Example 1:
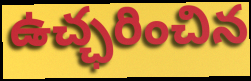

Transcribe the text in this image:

ఉచ్ఛరించిన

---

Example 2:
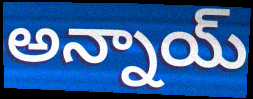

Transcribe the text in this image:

అన్నాయ్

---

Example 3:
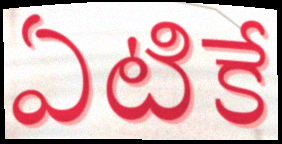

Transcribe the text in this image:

ఏటికే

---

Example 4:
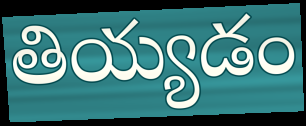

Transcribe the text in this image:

తియ్యడం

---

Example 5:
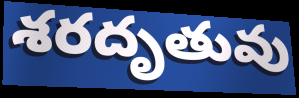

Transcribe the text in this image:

శరదృతువు